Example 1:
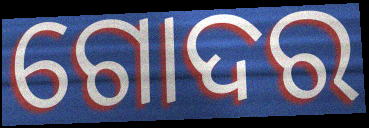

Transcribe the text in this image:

ଗୋଦର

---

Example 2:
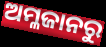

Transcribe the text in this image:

ଅମ୍ଳଜାନରୁ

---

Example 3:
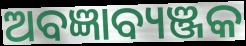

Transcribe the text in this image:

ଅବଜ୍ଞାବ୍ୟଞ୍ଜକ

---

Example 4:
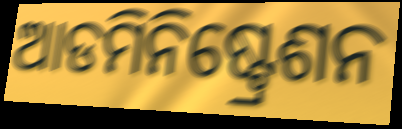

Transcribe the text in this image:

ଆଡମିନିଷ୍ଟ୍ରେଶନ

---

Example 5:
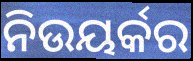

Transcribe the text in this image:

ନିଉୟର୍କର